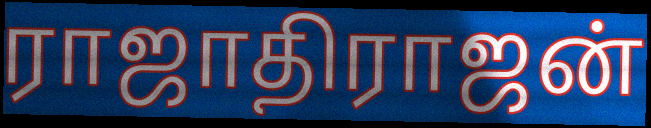
ராஜாதிராஜன்